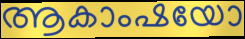
ആകാംഷയോ